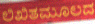
ಲಿಖಿತಮೂಲದ